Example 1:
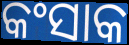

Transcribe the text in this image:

କଂସାକ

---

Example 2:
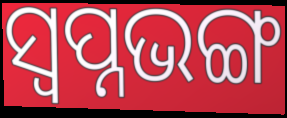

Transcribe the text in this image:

ସ୍ୱପ୍ନଭଙ୍ଗ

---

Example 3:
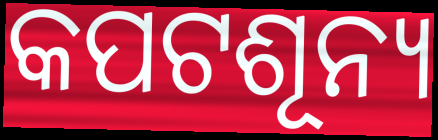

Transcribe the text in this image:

କପଟଶୂନ୍ୟ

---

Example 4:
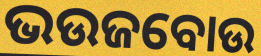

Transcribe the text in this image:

ଭଉଜବୋଉ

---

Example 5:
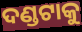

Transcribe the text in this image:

ଦଣ୍ଡଟାକୁ